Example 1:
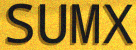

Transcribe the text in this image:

SUMX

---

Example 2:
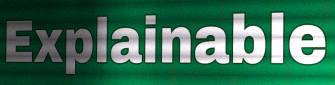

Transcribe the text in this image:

Explainable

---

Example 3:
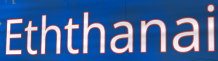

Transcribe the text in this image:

Eththanai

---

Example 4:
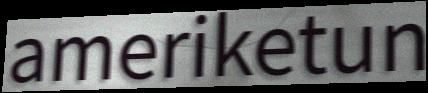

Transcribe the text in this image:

ameriketun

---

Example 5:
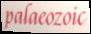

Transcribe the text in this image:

palaeozoic